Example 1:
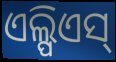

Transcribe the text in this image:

ଏଲ୍ପିଏସ୍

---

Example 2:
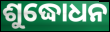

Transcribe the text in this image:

ଶୁଦ୍ଧୋଧନ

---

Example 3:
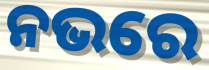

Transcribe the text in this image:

ନଭରେ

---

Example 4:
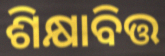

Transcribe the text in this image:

ଶିକ୍ଷାବିତ୍ତ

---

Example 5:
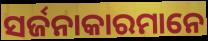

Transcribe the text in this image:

ସର୍ଜନାକାରମାନେ